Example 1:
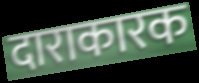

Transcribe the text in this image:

दाराकारक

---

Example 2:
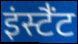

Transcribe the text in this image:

इंस्टैंट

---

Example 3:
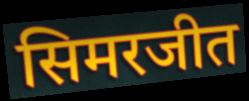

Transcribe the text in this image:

सिमरजीत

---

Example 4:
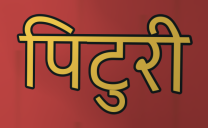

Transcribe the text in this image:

पिटुरी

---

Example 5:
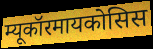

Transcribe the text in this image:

म्यूकॉरमायकोसिस